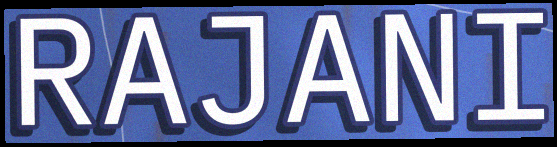
RAJANI